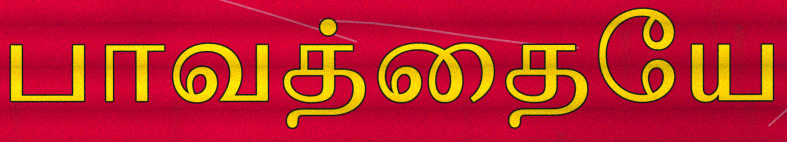
பாவத்தையே